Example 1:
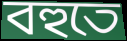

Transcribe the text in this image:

বহুতে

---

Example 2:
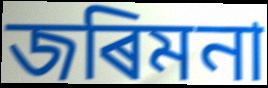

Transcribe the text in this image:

জৰিমনা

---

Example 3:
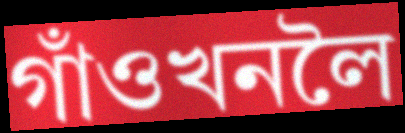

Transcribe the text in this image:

গাঁওখনলৈ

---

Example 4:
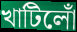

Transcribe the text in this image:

খাটিলোঁ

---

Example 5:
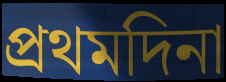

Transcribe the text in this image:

প্ৰথমদিনা